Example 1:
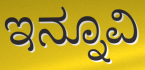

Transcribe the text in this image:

ಇನ್ನೂವಿ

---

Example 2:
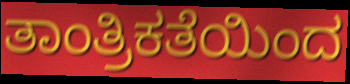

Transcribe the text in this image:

ತಾಂತ್ರಿಕತೆಯಿಂದ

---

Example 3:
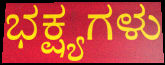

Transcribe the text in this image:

ಭಕ್ಷ್ಯಗಳು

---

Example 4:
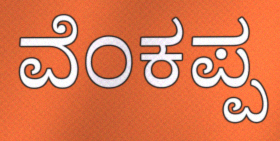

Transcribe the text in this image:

ವೆಂಕಪ್ಪ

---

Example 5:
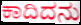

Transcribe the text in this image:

ಕಾದಿದನು